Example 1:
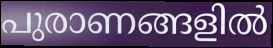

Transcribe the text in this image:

പുരാണങ്ങളിൽ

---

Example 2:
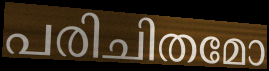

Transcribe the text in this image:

പരിചിതമോ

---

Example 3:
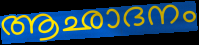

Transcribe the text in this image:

ആഛാദനം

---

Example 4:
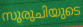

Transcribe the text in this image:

സുരുചിയുടെ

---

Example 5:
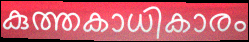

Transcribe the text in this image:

കുത്തകാധികാരം